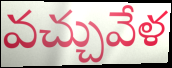
వచ్చువేళ